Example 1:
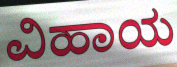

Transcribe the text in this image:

ವಿಹಾಯ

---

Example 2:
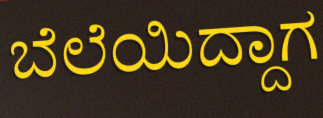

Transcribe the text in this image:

ಬೆಲೆಯಿದ್ದಾಗ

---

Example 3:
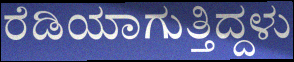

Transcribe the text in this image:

ರೆಡಿಯಾಗುತ್ತಿದ್ದಳು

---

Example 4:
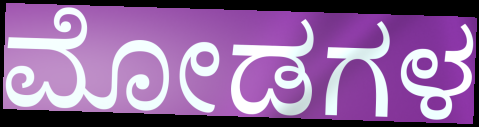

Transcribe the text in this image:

ಮೋಡಗಳ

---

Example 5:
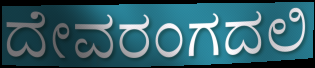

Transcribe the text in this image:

ದೇವರಂಗದಲಿ